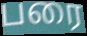
பரை